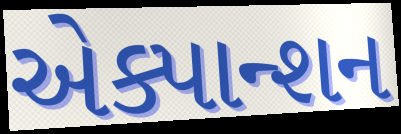
એક્પાન્શન